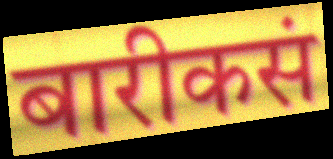
बारीकसं